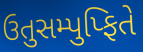
ઉતુસમ્પુપ્ફિતે